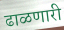
ढाळणारी